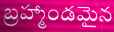
బ్రహ్మాండమైన